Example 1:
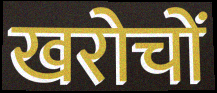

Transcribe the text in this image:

खरोचों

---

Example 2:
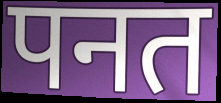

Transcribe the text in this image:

पनत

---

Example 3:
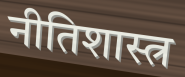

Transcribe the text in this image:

नीतिशास्त्र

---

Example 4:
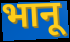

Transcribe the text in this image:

भानू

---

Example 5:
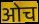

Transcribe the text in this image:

ओच